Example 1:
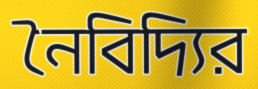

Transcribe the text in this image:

নৈবিদ্যির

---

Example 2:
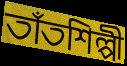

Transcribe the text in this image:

তাঁতশিল্পী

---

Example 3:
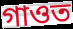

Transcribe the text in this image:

গাওত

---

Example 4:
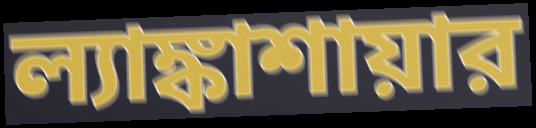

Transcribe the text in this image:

ল্যাঙ্কাশায়ার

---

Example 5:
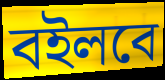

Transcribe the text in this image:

বইলবে